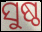
ସୁଷ୍ଠ